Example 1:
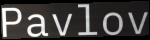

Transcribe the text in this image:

Pavlov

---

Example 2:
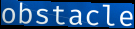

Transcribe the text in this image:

obstacle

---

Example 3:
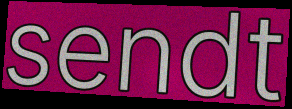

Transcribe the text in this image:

sendt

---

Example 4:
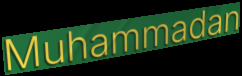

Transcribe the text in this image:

Muhammadan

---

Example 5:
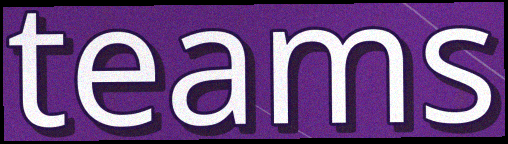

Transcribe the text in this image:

teams